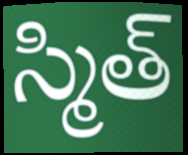
స్మిత్